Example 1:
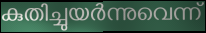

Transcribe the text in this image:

കുതിച്ചുയർന്നുവെന്ന്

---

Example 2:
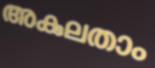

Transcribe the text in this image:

അകുലതാം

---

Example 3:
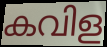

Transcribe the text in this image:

കവിള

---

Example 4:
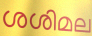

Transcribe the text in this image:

ശശിമല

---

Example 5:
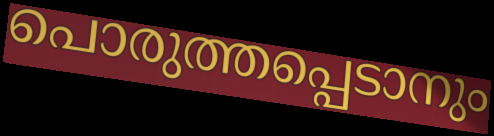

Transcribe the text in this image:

പൊരുത്തപ്പെടാനും